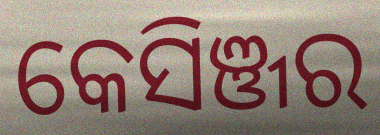
କେସିଞ୍ଜର